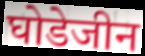
घोडेजीन